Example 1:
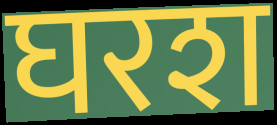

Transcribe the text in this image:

घरश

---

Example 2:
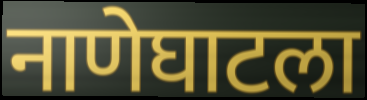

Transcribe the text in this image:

नाणेघाटला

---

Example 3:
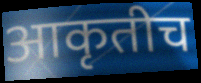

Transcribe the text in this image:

आकृतीच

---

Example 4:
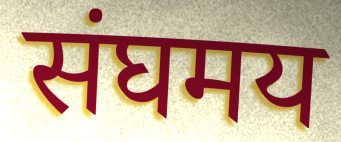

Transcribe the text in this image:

संघमय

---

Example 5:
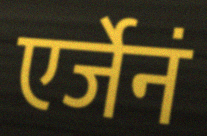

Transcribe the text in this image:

एर्जेनं